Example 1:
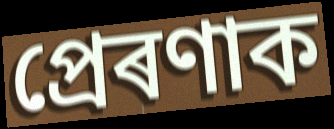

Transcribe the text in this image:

প্ৰেৰণাক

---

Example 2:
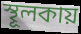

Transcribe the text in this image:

স্থূলকায়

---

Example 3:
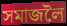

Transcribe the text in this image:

সমাজলৈ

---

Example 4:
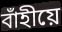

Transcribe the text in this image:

বাঁহীয়ে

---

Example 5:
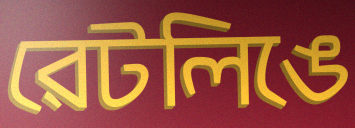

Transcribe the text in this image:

ৱেটলিঙে